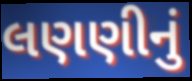
લણણીનું